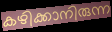
കഴിക്കാനിരുന്ന